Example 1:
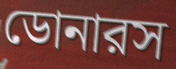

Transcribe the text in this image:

ডোনারস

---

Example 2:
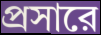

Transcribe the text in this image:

প্রসারে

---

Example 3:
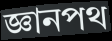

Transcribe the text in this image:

জ্ঞানপথ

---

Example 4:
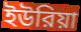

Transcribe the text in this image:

ইউরিয়া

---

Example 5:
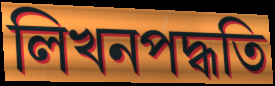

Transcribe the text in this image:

লিখনপদ্ধতি